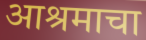
आश्रमाचा